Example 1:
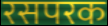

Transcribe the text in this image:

रसपरक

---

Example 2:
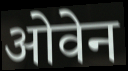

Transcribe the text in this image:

ओवेन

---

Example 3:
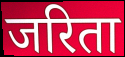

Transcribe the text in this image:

जरिता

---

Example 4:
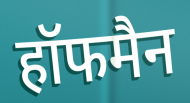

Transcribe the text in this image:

हॉफमैन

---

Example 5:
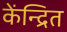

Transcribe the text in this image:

केंन्द्रित